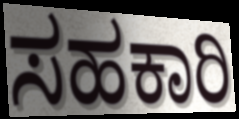
ಸಹಕಾರಿ